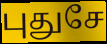
புதுசே